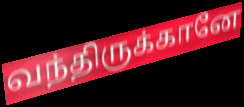
வந்திருக்கானே